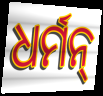
ଧର୍ମନ୍